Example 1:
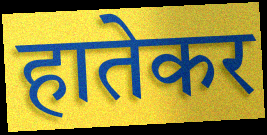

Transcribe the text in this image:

हातेकर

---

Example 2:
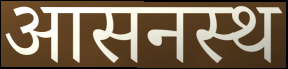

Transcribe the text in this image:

आसनस्थ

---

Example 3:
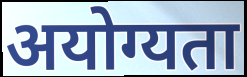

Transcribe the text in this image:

अयोग्यता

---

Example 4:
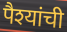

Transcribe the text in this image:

पैश्यांची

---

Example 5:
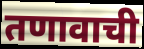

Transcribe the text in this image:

तणावाची